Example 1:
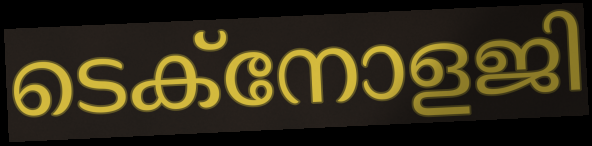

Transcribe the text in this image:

ടെക്നോളജി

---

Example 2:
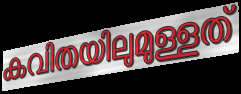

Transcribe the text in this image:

കവിതയിലുമുള്ളത്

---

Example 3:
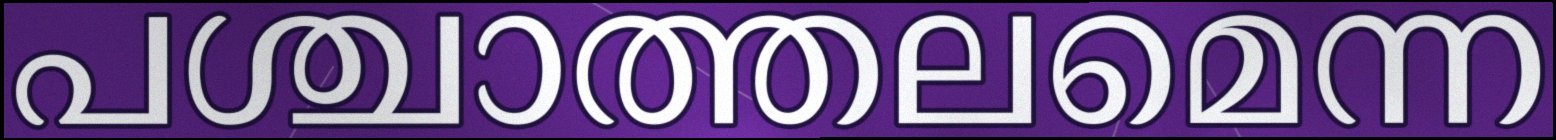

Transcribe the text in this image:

പശ്ചാത്തലമെന്ന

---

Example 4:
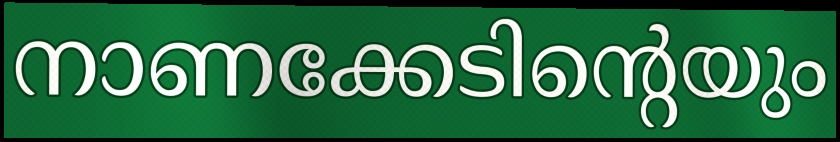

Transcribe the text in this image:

നാണക്കേടിന്റെയും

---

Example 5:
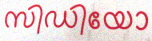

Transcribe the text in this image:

സിഡിയോ